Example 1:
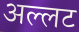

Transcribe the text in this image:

अल्लट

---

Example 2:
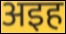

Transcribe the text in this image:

अइह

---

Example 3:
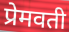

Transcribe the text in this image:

प्रेमवती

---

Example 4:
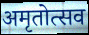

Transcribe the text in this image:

अमृतोत्सव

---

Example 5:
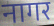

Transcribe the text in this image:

नागर